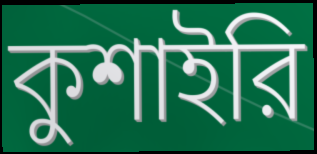
কুশাইরি